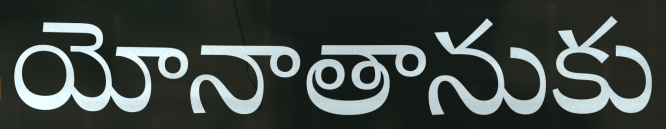
యోనాతానుకు